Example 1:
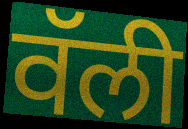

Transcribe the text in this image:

वॅली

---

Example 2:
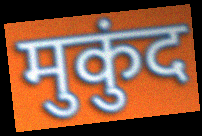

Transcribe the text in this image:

मुकुंद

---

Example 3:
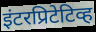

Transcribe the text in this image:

इंटरप्रिटेटिव्ह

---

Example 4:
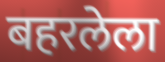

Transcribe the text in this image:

बहरलेला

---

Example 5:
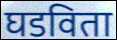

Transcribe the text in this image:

घडविता